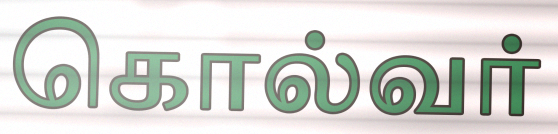
கொல்வர்